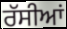
ਰੱਸੀਆਂ